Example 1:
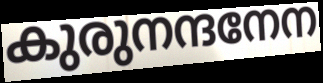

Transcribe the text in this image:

കുരുനന്ദനേന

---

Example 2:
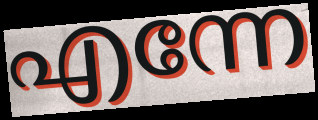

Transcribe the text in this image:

എന്നേ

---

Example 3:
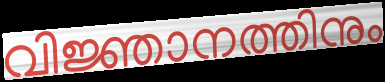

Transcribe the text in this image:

വിജ്ഞാനത്തിനും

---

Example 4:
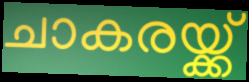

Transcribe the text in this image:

ചാകരയ്ക്ക്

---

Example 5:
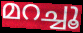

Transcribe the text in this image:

മറച്ചൂ